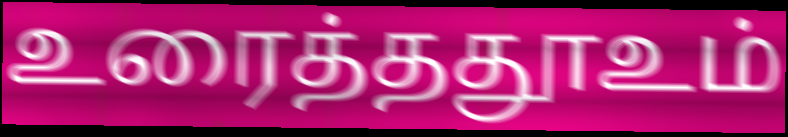
உரைத்ததூஉம்